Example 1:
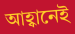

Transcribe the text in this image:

আহ্বানেই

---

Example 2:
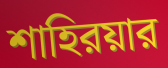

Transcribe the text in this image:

শাহিরয়ার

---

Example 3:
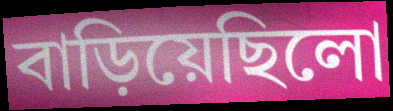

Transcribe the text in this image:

বাড়িয়েছিলো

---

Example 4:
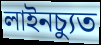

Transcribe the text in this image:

লাইনচ্যুত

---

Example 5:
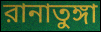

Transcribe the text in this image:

রানাতুঙ্গা